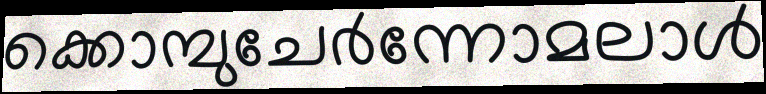
ക്കൊമ്പുചേർന്നോമലാൾ